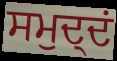
ਸਮੁਦ੍ਦਂ